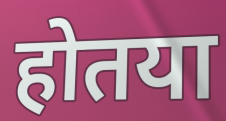
होतया